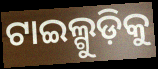
ଟାଇଲ୍ଗୁଡ଼ିକୁ